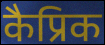
कैप्रिक